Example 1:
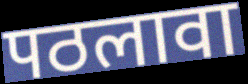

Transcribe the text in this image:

पठलावा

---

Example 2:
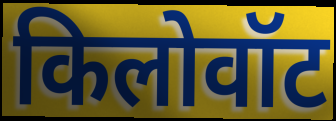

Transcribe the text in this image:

किलोवॉट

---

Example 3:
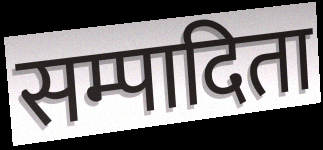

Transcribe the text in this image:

सम्पादिता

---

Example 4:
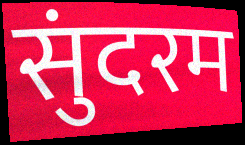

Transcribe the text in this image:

सुंदरम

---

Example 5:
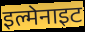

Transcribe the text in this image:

इल्मेनाइट